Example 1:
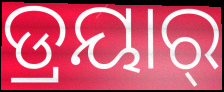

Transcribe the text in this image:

ଡ୍ରୟାର୍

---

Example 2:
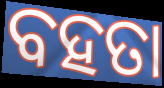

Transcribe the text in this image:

ବହତା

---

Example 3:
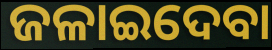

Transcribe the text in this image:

ଜଳାଇଦେବା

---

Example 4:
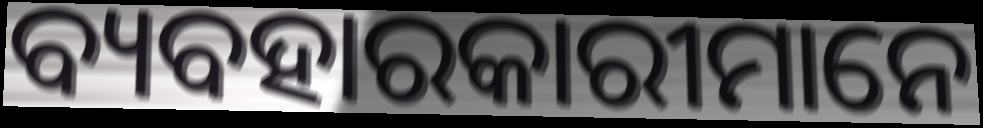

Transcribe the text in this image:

ବ୍ୟବହାରକାରୀମାନେ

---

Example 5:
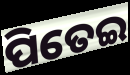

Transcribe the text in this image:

ପିତେଇ